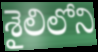
శైలిలోని